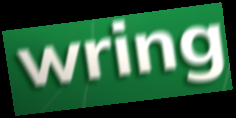
wring